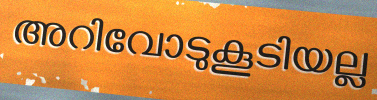
അറിവോടുകൂടിയല്ല